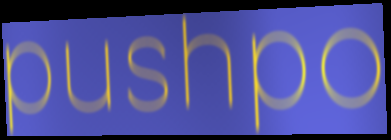
pushpo